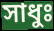
সাধুঃ